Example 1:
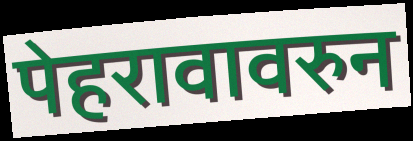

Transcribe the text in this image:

पेहरावावरुन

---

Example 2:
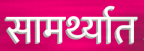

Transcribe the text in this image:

सामर्थ्यात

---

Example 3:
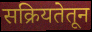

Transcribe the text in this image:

सक्रियतेतून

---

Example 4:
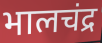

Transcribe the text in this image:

भालचंद्र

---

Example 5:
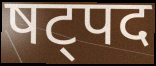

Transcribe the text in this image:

षट्पद